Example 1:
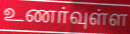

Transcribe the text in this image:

உணர்வுள்ள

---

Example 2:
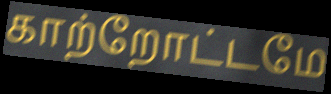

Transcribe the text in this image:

காற்றோட்டமே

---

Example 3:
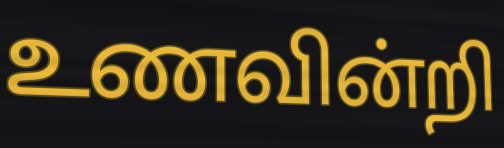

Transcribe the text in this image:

உணவின்றி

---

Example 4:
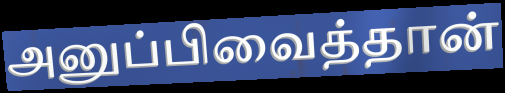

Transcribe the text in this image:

அனுப்பிவைத்தான்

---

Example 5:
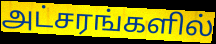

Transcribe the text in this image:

அட்சரங்களில்